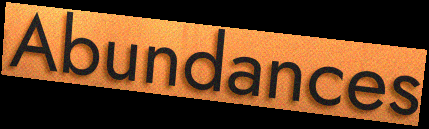
Abundances